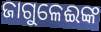
ଜାଗୁଳେଈଙ୍କ